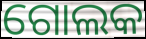
ଗୋଲକ